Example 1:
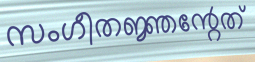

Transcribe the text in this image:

സംഗീതജ്ഞന്റേത്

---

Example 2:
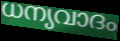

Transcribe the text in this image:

ധന്യവാദം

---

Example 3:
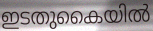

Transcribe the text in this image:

ഇടതുകൈയിൽ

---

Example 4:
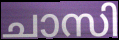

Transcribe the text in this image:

ചാസി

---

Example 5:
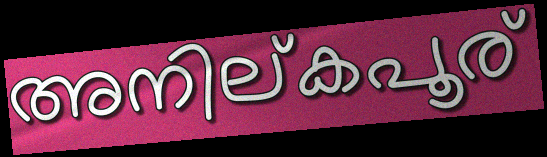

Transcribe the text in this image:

അനില്കപൂര്